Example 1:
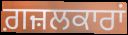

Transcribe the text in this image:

ਗ਼ਜ਼ਲਕਾਰਾਂ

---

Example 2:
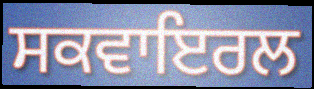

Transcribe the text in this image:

ਸਕਵਾਇਰਲ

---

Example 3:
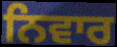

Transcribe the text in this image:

ਨਿਵਾਰ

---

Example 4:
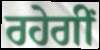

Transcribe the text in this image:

ਰਹੇਗੀਂ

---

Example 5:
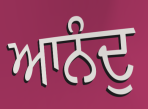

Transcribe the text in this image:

ਆਨੰਦੁ